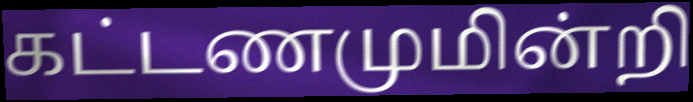
கட்டணமுமின்றி